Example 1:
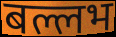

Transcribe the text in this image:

बल्लभ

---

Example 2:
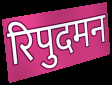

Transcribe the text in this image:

रिपुदमन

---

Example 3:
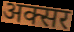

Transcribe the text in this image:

अक्सर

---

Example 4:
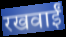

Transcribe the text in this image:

रखवाईं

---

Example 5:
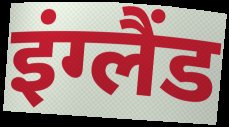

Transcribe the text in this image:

इंग्लैंड